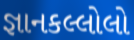
જ્ઞાનકલ્લોલો